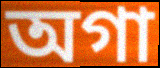
অগা